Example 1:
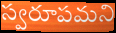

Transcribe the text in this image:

స్వరూపమని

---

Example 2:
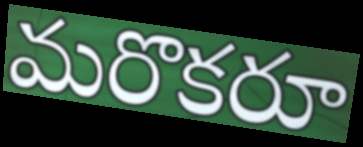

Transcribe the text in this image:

మరొకరూ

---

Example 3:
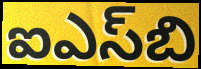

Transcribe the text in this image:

ఐఎస్‌బి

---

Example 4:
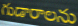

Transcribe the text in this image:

గుడారాలను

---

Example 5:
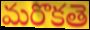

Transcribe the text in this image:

మరొకతె